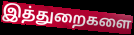
இத்துறைகளை